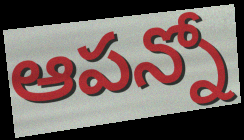
ఆపన్నో